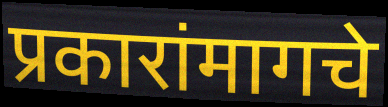
प्रकारांमागचे